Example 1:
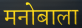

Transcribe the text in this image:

मनोबाला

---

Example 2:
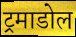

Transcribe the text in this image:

ट्रमाडोल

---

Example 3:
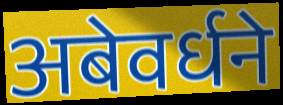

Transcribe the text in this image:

अबेवर्धने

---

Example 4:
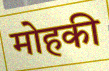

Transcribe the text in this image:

मोहकी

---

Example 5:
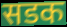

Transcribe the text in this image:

सडक